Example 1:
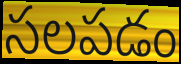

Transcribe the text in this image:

సలపడం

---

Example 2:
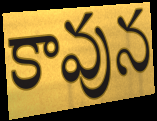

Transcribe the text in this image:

కావున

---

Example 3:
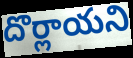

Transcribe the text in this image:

దొర్లాయని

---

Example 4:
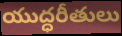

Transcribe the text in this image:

యుద్ధరీతులు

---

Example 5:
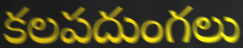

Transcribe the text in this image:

కలపదుంగలు